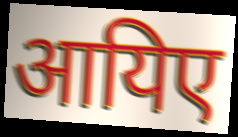
आयिए